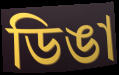
ডিঙা